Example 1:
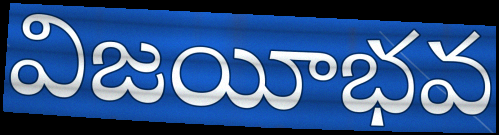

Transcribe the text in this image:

విజయీభవ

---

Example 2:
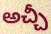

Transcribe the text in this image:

అచ్చీ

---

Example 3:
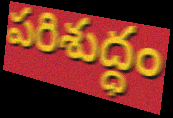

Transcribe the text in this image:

పరిశుద్ధం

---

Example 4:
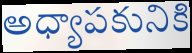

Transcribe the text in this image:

అధ్యాపకునికి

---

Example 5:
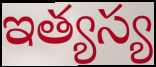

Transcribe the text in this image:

ఇత్యస్య